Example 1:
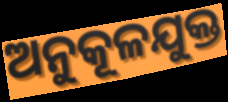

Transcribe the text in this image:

ଅନୁକୂଳଯୁକ୍ତ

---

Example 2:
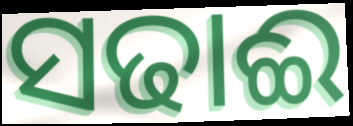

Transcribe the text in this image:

ସଢାଈ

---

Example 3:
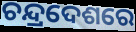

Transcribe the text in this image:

ଚନ୍ଦ୍ରଦେଶରେ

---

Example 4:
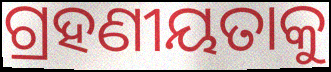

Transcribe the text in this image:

ଗ୍ରହଣୀୟତାକୁ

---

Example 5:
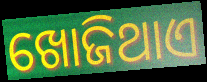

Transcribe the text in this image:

ଖୋଜିଥାଏ